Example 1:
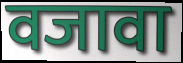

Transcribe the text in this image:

वजावा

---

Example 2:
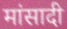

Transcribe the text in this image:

मांसादी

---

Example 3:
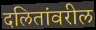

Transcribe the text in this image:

दलितांवरील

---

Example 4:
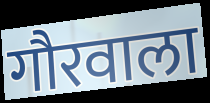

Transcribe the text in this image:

गौरवाला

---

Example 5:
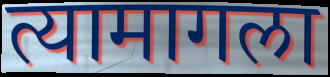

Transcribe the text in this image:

त्यामागला